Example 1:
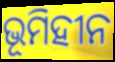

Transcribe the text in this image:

ଭୂମିହୀନ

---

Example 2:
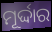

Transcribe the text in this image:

ମୂର୍ଦ୍ଦାର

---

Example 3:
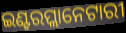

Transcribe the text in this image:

ଇଣ୍ଟରପ୍ଲାନେଟାରୀ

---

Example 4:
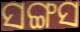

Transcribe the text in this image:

ସଙ୍ଗସ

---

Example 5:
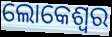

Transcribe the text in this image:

ଲୋକେଶ୍ୱର